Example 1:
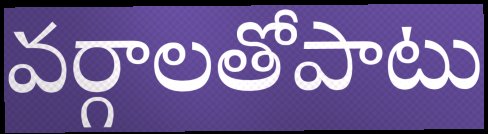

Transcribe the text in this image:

వర్గాలతోపాటు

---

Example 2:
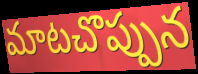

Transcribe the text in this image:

మాటచొప్పున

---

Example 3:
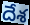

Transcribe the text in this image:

దేశ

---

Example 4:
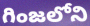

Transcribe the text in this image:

గింజలోని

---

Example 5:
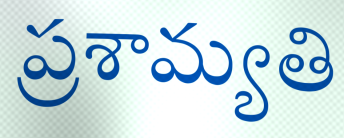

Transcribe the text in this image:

ప్రశామ్యతి